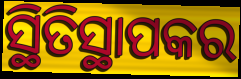
ସ୍ଥିତିସ୍ଥାପକର